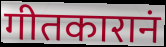
गीतकारानं